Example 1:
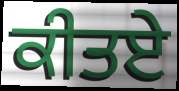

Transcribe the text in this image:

ਕੀਤਏ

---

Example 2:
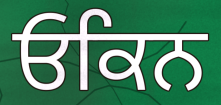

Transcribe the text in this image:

ਓਕਿਨ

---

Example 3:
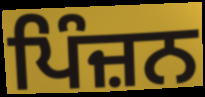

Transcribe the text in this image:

ਪਿੰਜ਼ਨ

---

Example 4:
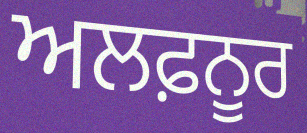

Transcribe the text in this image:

ਅਲਫ਼ਨੂਰ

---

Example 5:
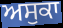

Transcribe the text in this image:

ਅਸੁਕਾ